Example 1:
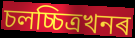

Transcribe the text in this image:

চলচ্চিত্ৰখনৰ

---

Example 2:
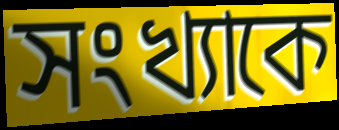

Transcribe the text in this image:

সংখ্যাকে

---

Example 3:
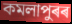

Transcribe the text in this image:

কমলাপুৰৰ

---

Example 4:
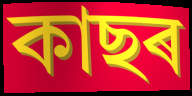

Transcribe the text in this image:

কাছৰ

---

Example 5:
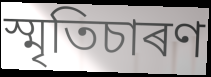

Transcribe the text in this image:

স্মৃতিচাৰণ